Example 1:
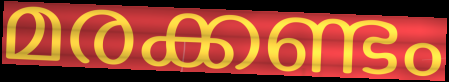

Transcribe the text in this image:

മരക്കണ്ടം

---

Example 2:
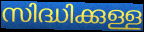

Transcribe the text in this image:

സിദ്ധിക്കുള്ള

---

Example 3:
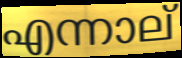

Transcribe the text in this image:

എന്നാല്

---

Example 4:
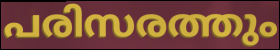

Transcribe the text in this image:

പരിസരത്തും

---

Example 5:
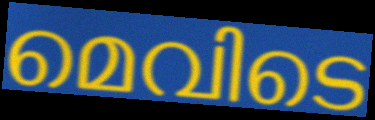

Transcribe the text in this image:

മെവിടെ